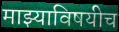
माझ्याविषयीच